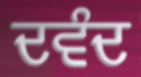
ਦਵੰਦ